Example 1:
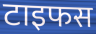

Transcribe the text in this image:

टाइफस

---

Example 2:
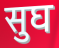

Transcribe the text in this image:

सुघ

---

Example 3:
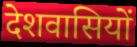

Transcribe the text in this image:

देशवासियों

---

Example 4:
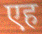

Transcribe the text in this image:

एह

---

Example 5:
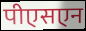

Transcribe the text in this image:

पीएसएन